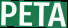
PETA